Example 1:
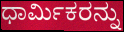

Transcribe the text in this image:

ಧಾರ್ಮಿಕರನ್ನು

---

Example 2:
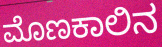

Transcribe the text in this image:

ಮೊಣಕಾಲಿನ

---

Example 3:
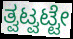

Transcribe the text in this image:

ತ್ವಟ್ವಟ್ಟೇ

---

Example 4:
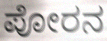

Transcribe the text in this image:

ಪೋರನ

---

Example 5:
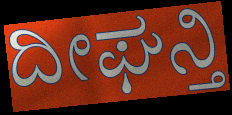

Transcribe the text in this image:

ದೀಘನ್ತಿ